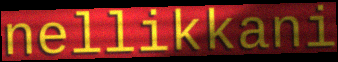
nellikkani